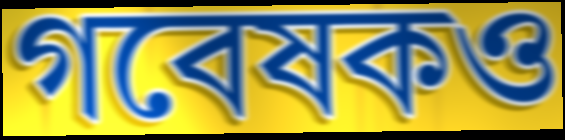
গবেষকও